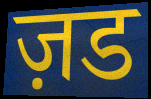
ज़ड